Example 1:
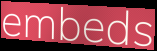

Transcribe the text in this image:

embeds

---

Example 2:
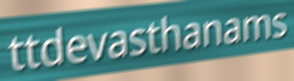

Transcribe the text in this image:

ttdevasthanams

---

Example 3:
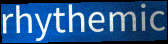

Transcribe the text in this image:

rhythemic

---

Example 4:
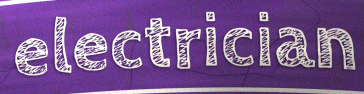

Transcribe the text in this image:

electrician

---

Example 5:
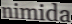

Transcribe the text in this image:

nimida